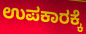
ಉಪಕಾರಕ್ಕೆ